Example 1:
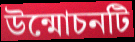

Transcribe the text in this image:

উন্মোচনটি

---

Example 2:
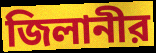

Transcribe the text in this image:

জিলানীর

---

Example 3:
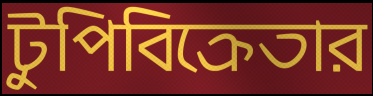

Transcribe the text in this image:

টুপিবিক্রেতার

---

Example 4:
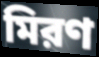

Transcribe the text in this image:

মিরণ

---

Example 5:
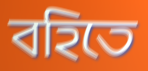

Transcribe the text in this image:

বহিতে